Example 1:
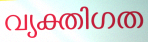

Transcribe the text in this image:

വ്യക്തിഗത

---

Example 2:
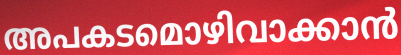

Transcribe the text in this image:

അപകടമൊഴിവാക്കാൻ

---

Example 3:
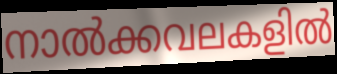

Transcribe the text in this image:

നാൽക്കവലകളിൽ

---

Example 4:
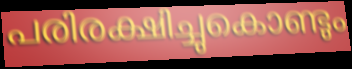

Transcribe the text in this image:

പരിരക്ഷിച്ചുകൊണ്ടും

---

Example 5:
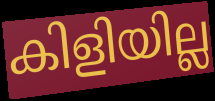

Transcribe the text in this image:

കിളിയില്ല